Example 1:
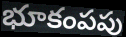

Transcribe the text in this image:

భూకంపపు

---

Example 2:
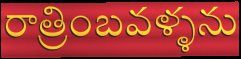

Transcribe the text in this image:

రాత్రింబవళ్ళను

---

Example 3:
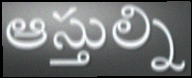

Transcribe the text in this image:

ఆస్తుల్ని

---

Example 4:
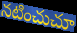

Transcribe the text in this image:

నటించుచూ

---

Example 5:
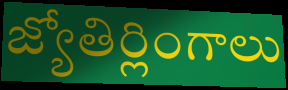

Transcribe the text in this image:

జ్యోతిర్లింగాలు